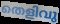
തെളിവു